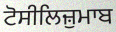
ਟੋਸੀਲਿਜ਼ੁਮਾਬ